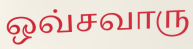
ஒவ்சவாரு